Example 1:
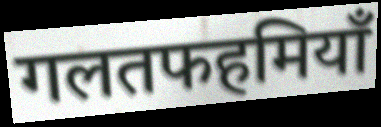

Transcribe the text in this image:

गलतफहमियाँ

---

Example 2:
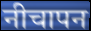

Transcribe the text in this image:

नीचापन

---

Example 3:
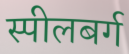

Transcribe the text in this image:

स्पीलबर्ग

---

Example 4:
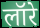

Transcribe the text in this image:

लॉरे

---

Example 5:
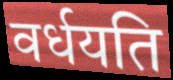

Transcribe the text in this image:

वर्धयति